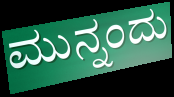
ಮುನ್ನಂದು